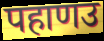
पहाणउ